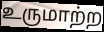
உருமாற்ற